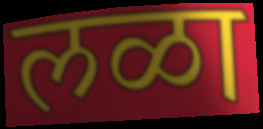
लळा